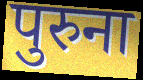
पुरुना